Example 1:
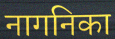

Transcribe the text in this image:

नागनिका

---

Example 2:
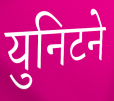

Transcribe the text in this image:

युनिटने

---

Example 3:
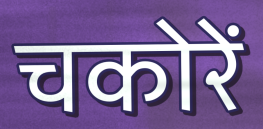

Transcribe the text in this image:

चकोरें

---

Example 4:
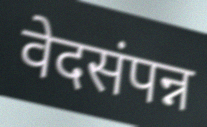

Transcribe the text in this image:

वेदसंपन्न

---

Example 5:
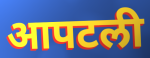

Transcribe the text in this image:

आपटली